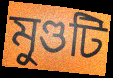
মুণ্ডটি